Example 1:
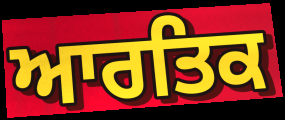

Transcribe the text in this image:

ਆਰਤਿਕ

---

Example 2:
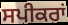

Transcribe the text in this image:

ਸਪੀਕਰਾਂ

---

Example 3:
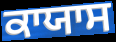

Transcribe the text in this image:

ਕਾਯਾਸ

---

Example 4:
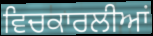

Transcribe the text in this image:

ਵਿਚਕਾਰਲੀਆਂ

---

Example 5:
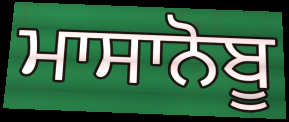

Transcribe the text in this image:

ਮਾਸਾਨੋਬੂ